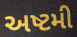
અષ્ટમી